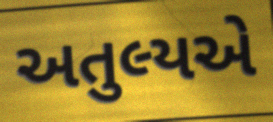
અતુલ્યએ